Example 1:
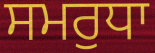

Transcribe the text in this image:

ਸਮਰੁਧਾ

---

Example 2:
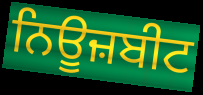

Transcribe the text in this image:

ਨਿਊਜ਼ਬੀਟ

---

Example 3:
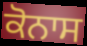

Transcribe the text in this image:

ਕੋਨਾਸ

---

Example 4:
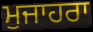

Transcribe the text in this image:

ਮੁਜਾਹਰਾ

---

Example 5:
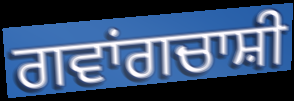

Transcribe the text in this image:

ਗਵਾਂਗਚਾਸ਼ੀ